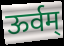
ऊर्वम्